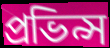
প্রভিন্স